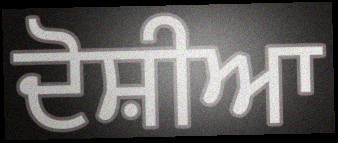
ਦੋਸ਼ੀਆ